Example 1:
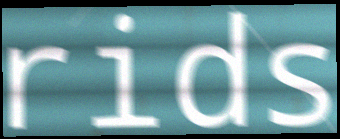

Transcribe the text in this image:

rids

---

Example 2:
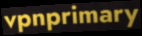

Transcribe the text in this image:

vpnprimary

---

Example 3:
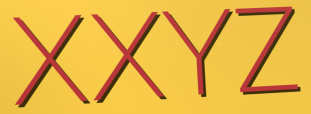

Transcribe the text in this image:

XXYZ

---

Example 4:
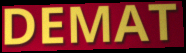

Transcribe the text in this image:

DEMAT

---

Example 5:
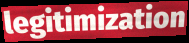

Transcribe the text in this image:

legitimization